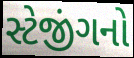
સ્ટેજીંગનો